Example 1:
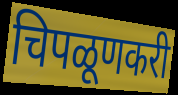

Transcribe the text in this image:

चिपळूणकरी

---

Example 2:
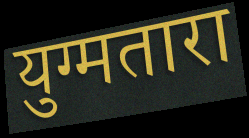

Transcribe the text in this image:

युग्मतारा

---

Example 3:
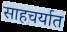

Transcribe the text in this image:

साहचर्यात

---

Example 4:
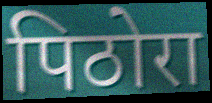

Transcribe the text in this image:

पिठोरा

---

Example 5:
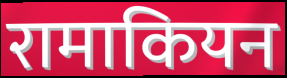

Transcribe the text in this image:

रामाकियन